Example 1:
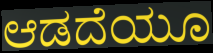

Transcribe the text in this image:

ಆಡದೆಯೂ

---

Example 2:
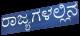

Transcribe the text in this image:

ರಾಜ್ಯಗಳಲ್ಲಿನ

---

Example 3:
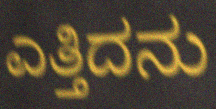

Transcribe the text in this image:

ಎತ್ತಿದನು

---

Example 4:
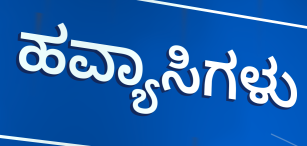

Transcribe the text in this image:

ಹವ್ಯಾಸಿಗಳು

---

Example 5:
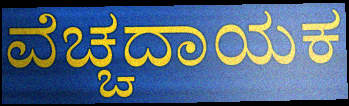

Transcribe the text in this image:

ವೆಚ್ಚದಾಯಕ